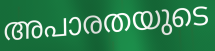
അപാരതയുടെ